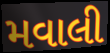
મવાલી